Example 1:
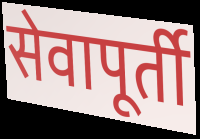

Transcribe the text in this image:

सेवापूर्ती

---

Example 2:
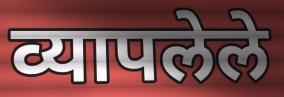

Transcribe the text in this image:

व्यापलेले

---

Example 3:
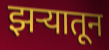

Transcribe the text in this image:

झऱ्यातून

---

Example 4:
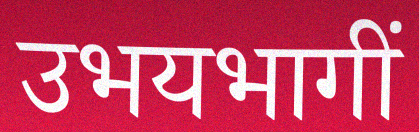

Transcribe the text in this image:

उभयभागीं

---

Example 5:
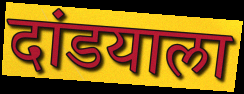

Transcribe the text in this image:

दांडयाला